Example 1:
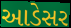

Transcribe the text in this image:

આડેસર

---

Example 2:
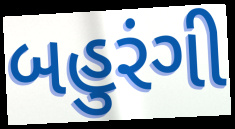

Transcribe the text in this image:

બહુરંગી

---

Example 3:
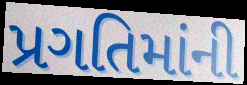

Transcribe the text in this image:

પ્રગતિમાંની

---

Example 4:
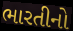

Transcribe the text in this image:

ભારતીનો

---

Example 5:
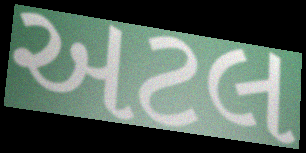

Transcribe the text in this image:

અટલ